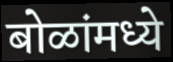
बोळांमध्ये